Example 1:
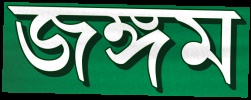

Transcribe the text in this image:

জঙ্গম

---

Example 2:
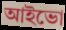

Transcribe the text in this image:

আইভো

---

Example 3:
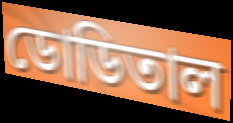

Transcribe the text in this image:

ডোডিতাল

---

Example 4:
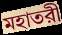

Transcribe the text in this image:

মহাতরী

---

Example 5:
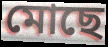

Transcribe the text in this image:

মোছে